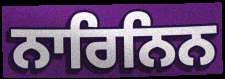
ਨਾਰਿਨਿਨ